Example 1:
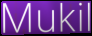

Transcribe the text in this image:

Mukil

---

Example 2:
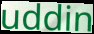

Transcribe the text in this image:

uddin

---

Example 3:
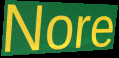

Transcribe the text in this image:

Nore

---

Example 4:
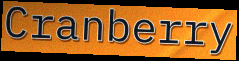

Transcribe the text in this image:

Cranberry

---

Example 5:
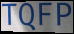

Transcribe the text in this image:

TQFP